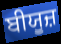
ਬੀਯੂਜ਼